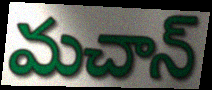
మచాన్